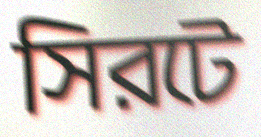
সিরটে